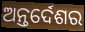
ଅନ୍ତର୍ଦେଶର